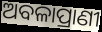
ଅବଳାପ୍ରାଣୀ